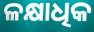
ଳକ୍ଷାଧିକ